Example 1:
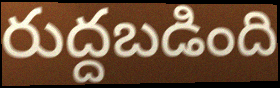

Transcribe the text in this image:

రుద్దబడింది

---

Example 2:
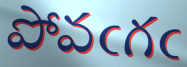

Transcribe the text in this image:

పోవఁగఁ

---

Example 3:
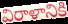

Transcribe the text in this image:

విరాళానికి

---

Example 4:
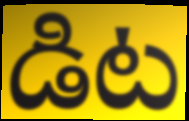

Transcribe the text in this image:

డిట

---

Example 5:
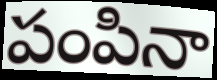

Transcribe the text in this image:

పంపినా